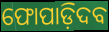
ଫୋପାଡ଼ିଦବ